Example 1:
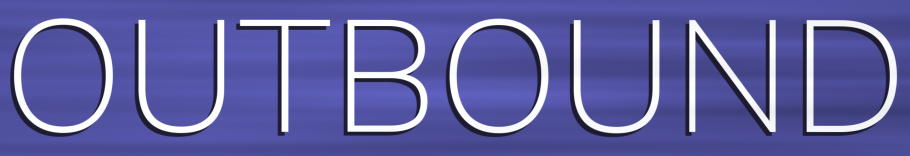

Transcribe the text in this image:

OUTBOUND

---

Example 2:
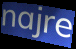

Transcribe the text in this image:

najre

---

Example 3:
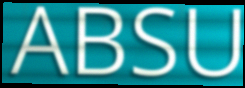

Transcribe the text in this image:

ABSU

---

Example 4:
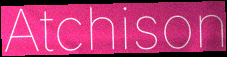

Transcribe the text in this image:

Atchison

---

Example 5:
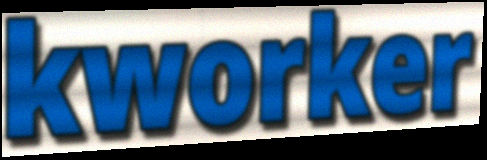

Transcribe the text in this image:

kworker